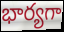
భార్యగా